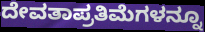
ದೇವತಾಪ್ರತಿಮೆಗಳನ್ನೂ